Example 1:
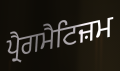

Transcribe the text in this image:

ਪ੍ਰੈਗਮੈਟਿਜ਼ਮ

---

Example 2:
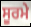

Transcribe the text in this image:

ਸੂਰਮੇ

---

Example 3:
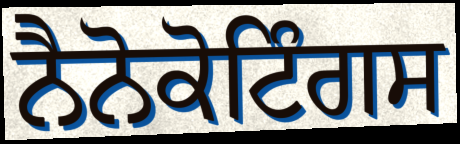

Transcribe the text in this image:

ਨੈਨੋਕੋਟਿੰਗਸ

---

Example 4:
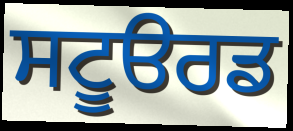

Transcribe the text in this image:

ਸਟੂੳਰਡ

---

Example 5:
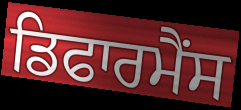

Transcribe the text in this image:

ਡਿਫਾਰਮੈਂਸ